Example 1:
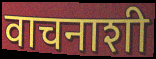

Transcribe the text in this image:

वाचनाशी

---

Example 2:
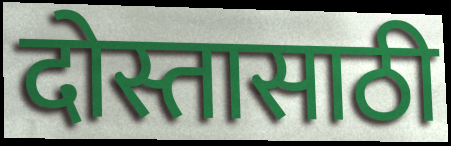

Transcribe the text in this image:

दोस्तासाठी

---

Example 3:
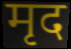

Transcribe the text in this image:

मृद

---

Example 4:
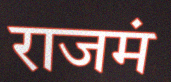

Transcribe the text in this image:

राजमं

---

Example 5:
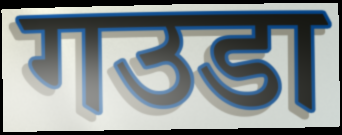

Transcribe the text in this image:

गउडा